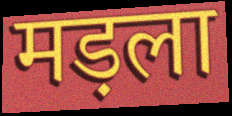
मड़ला